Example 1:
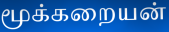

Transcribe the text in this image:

மூக்கறையன்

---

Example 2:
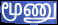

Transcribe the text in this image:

மூணு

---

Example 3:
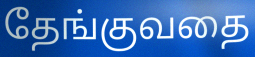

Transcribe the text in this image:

தேங்குவதை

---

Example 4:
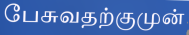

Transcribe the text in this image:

பேசுவதற்குமுன்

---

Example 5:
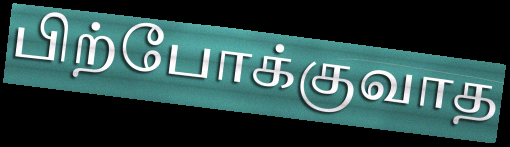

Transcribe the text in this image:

பிற்போக்குவாத